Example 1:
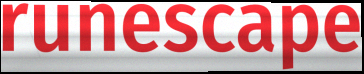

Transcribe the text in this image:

runescape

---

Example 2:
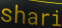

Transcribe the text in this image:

shari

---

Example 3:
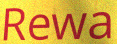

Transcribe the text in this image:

Rewa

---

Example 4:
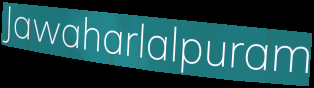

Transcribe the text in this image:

Jawaharlalpuram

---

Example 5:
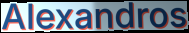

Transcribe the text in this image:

Alexandros